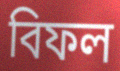
বিফল